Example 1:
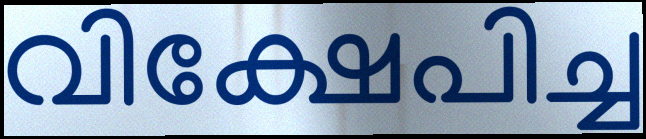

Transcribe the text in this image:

വിക്ഷേപിച്ച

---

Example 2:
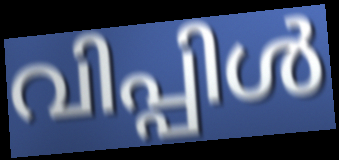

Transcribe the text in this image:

വിപ്പിൾ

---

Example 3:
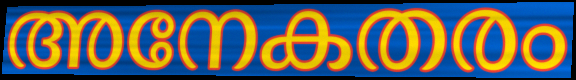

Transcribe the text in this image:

അനേകതരം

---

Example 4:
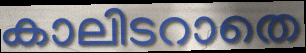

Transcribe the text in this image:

കാലിടറാതെ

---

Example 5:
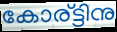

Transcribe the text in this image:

കോര്ട്ടിനു